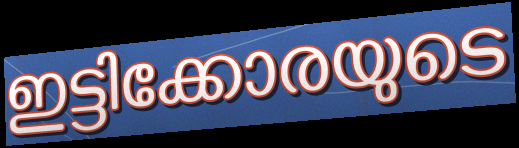
ഇട്ടിക്കോരയുടെ